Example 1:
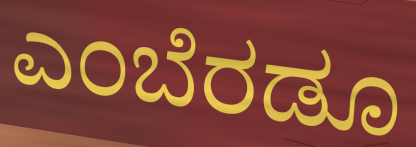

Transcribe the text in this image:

ಎಂಬೆರಡೂ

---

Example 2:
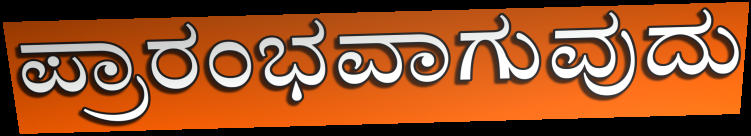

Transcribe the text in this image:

ಪ್ರಾರಂಭವಾಗುವುದು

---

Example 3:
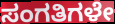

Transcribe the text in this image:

ಸಂಗತಿಗಳೇ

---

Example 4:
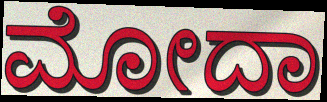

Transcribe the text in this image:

ಮೋದಾ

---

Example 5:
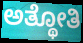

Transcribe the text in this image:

ಅತ್ಥೋತಿ